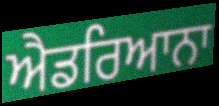
ਐਡਰਿਆਨਾ